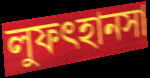
লুফৎহানসা